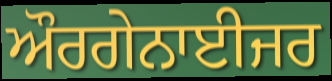
ਔਰਗੇਨਾਈਜਰ